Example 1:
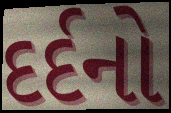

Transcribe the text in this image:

દર્દનો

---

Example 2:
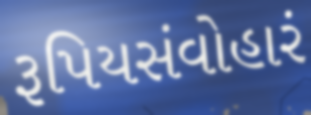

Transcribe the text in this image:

રૂપિયસંવોહારં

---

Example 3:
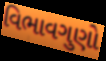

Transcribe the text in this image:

વિભાવગુણો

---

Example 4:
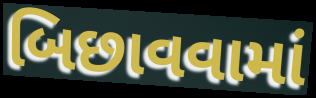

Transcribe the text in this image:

બિછાવવામાં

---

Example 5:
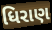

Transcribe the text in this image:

ધિરાણ